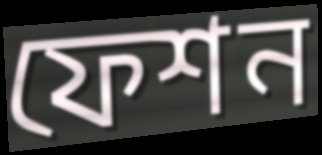
ফেশন